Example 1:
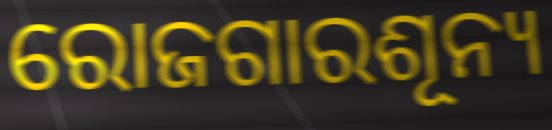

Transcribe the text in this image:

ରୋଜଗାରଶୂନ୍ୟ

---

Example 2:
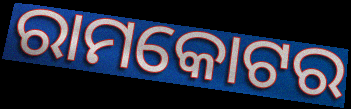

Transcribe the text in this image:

ରାମକୋଟର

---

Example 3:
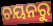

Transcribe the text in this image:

ଚୟନରୁ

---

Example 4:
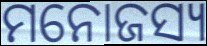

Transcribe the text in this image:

ମନୋଜସ୍ୟ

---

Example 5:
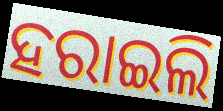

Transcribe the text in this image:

ହରାଇଲି